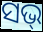
ସଭ୍